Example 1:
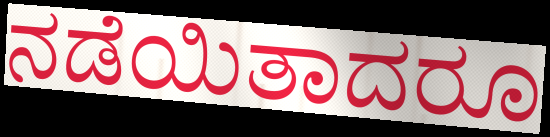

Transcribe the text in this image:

ನಡೆಯಿತಾದರೂ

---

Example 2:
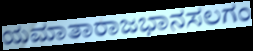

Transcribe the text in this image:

ಯಮಾತಾರಾಜಭಾನಸಲಗಂ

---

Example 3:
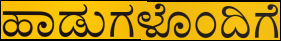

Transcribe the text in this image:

ಹಾಡುಗಳೊಂದಿಗೆ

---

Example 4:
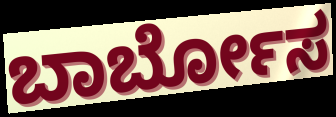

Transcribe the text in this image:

ಬಾರ್ಬೋಸ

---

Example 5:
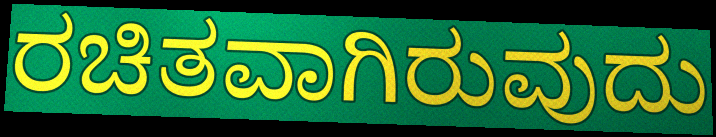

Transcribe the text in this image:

ರಚಿತವಾಗಿರುವುದು